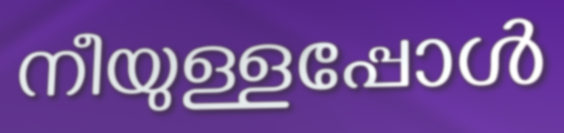
നീയുള്ളപ്പോൾ